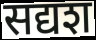
सद्यश